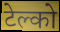
टेल्को